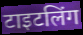
टाइटलिंग